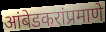
आंबेडकरांप्रमाणे